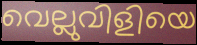
വെല്ലുവിളിയെ